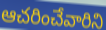
ఆచరించేవారిని